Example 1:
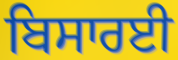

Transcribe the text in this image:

ਬਿਸਾਰਈ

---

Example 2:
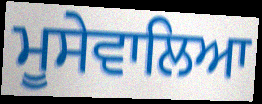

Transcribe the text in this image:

ਮੂਸੇਵਾਲਿਆ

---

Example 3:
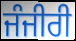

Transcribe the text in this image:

ਜੰਜੀਰੀ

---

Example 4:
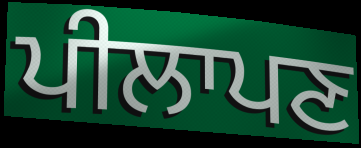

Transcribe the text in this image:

ਪੀਲਾਪਣ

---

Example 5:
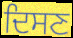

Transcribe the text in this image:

ਦਿਸਣ